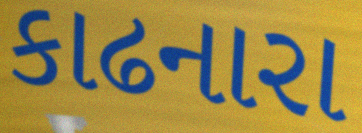
કાઢનારા